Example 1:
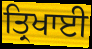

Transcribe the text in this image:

ਤ੍ਰਿਖਾਈ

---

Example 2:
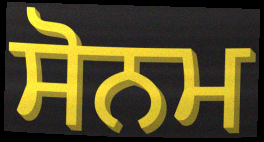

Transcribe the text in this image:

ਸੋਨਮ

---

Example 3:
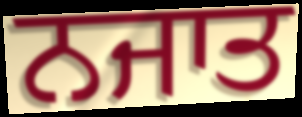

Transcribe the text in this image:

ਨਜਾਤ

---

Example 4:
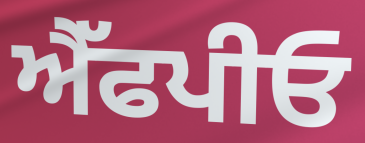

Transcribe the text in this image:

ਐੱਫਪੀਓ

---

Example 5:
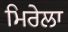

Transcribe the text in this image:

ਮਿਰੇਲਾ